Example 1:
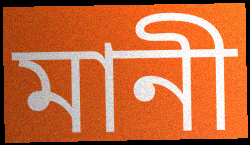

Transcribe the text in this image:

মানী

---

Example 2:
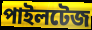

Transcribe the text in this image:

পাইলটেজ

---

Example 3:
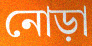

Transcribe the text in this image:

নোড়া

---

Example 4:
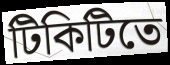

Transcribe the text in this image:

টিকিটিতে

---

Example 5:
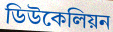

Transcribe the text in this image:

ডিউকেলিয়ন